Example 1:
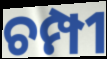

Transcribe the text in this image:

ଚମ୍ପୀ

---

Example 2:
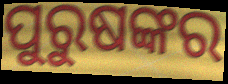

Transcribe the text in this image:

ପୁରୁଷଙ୍କର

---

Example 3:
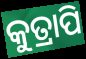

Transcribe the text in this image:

କୁତ୍ରାପି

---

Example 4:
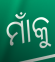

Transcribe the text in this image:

ମାଁକୁ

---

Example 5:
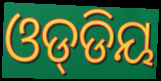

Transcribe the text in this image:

ଓଡ୍‌ଡିୟ